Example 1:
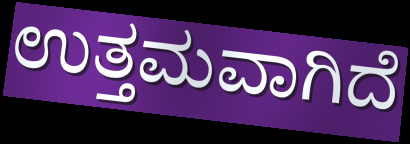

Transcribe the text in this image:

ಉತ್ತಮವಾಗಿದೆ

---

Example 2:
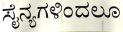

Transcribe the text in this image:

ಸೈನ್ಯಗಳಿಂದಲೂ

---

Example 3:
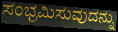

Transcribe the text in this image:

ಸಂಭ್ರಮಿಸುವುದನ್ನು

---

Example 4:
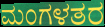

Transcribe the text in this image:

ಮಂಗಳತರ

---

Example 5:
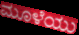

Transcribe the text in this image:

ಮೂಳೆಯು